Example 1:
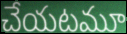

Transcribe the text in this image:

చేయటమూ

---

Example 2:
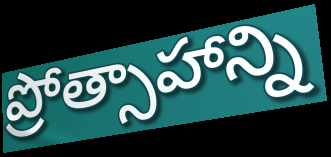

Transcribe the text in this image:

ప్రోత్సాహాన్ని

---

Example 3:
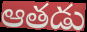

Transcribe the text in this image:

ఆతడు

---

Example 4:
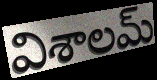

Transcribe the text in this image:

విశాలమ్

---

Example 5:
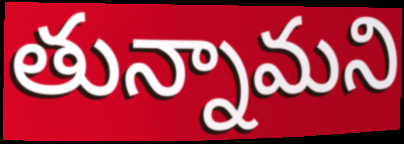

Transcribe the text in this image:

తున్నామని